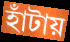
হাঁটায়